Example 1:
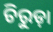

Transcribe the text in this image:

ଚିରୁଡ଼ା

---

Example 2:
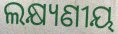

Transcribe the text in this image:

ଲକ୍ଷ୍ୟଣୀୟ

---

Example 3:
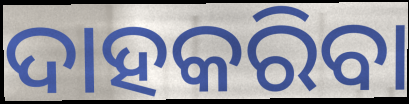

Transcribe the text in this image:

ଦାହକରିବା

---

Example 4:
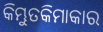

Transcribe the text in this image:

କିମ୍ଭୁତକିମାକାର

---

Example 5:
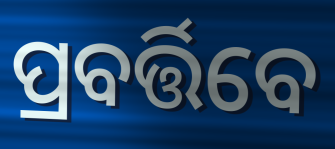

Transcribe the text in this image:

ପ୍ରବର୍ତ୍ତିବେ